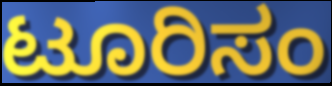
ಟೂರಿಸಂ